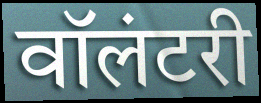
वॉलंटरी